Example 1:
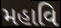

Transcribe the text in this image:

મહાવિ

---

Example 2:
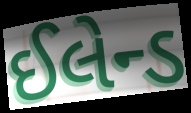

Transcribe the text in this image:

ઈલેન્ડ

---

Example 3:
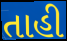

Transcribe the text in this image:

તાહી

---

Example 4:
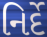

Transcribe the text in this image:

નિર્દે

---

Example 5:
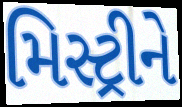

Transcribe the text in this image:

મિસ્ટ્રીને